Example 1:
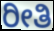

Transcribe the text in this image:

ರೀತಿ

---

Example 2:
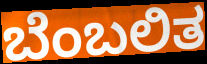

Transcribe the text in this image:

ಬೆಂಬಲಿತ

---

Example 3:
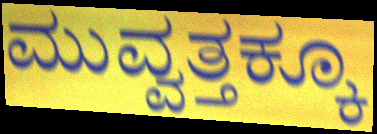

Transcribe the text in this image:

ಮುವ್ವತ್ತಕ್ಕೂ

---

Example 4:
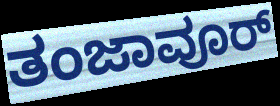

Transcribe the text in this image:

ತಂಜಾವೂರ್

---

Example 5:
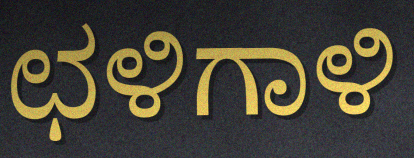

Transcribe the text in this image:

ಛಳಿಗಾಳಿ